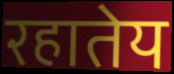
रहातेय